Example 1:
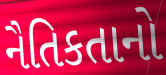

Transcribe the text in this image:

નૈતિકતાનો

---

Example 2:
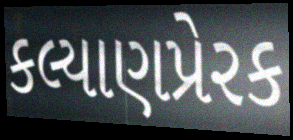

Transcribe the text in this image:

કલ્યાણપ્રેરક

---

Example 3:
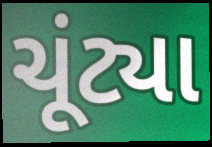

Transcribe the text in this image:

ચૂંટ્યા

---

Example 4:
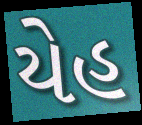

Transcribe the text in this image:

યેહ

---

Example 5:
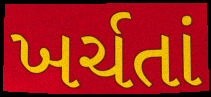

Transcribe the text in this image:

ખર્ચતાં